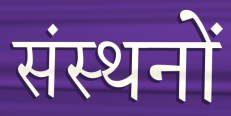
संस्थनों